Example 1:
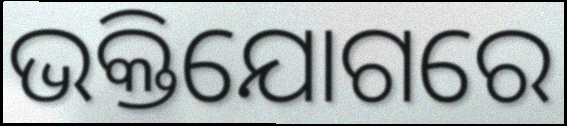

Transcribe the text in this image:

ଭକ୍ତିଯୋଗରେ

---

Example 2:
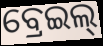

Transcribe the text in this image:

ବ୍ରେଇଲ୍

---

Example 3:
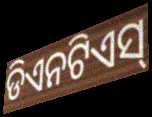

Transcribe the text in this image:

ଡିଏନଟିଏସ୍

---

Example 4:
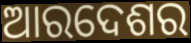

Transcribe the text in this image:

ଆରଦେଶର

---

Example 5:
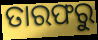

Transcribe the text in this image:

ତାରଫରୁ